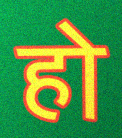
हो